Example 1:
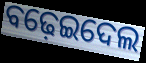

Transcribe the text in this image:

ବଢ଼େଇଦେଲ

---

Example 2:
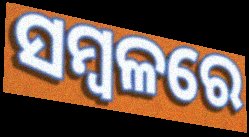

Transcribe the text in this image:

ସମ୍ବଳରେ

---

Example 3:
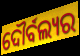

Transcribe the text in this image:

ଦୌର୍ବଲ୍ୟର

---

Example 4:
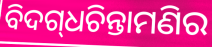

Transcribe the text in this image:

ବିଦଗ୍‌ଧଚିନ୍ତାମଣିର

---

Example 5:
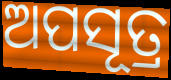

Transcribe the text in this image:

ଅପସୂତ୍ର